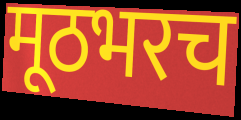
मूठभरच